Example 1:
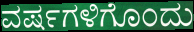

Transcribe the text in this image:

ವರ್ಷಗಳಿಗೊಂದು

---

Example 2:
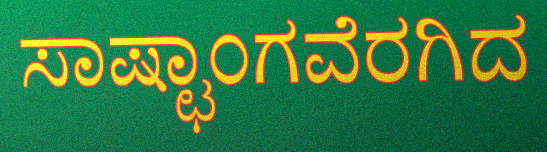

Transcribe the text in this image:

ಸಾಷ್ಟಾಂಗವೆರಗಿದ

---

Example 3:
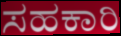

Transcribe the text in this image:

ಸಹಕಾರಿ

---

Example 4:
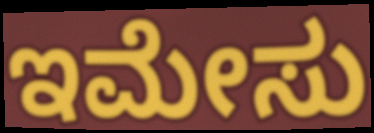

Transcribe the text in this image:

ಇಮೇಸು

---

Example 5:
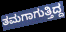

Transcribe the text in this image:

ತಮಗಾಗುತ್ತಿದ್ದ